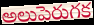
అలుపెరుగక